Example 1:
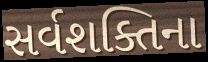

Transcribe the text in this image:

સર્વશક્તિના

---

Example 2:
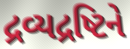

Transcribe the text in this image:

દ્રવ્યદ્રષ્ટિને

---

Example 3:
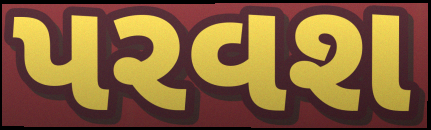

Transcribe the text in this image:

પરવશ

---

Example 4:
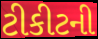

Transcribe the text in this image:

ટીકીટની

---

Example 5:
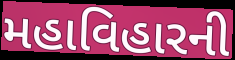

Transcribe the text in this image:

મહાવિહારની